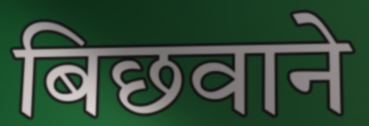
बिछवाने